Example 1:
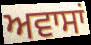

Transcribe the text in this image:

ਅਵਾਸਾਂ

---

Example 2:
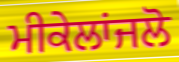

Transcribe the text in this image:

ਮੀਕੇਲਾਂਜਲੋ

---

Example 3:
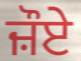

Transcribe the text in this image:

ਜ਼ੌਏ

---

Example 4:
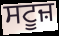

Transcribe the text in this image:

ਸਟੂਜ਼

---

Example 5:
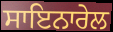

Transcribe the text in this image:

ਸਾਇਨਾਰੇਲ